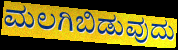
ಮಲಗಿಬಿಡುವುದು